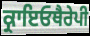
ਕ੍ਰਾਇਓਥੈਰੇਪੀ